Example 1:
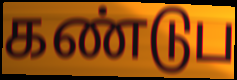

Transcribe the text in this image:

கண்டுப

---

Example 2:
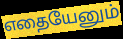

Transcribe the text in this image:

எதையேனும்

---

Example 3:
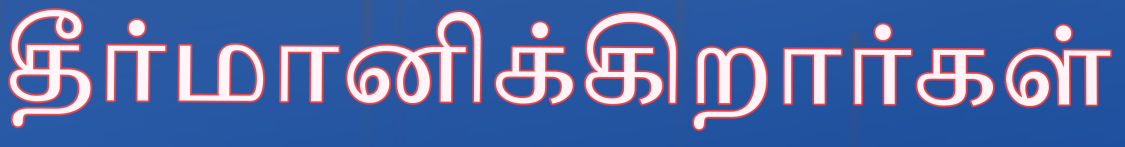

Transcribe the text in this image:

தீர்மானிக்கிறார்கள்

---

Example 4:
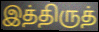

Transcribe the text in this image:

இத்திருத்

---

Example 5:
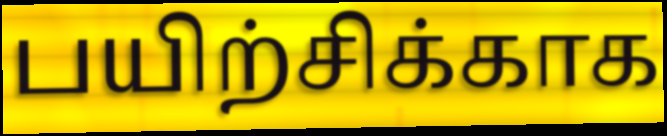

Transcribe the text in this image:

பயிற்சிக்காக